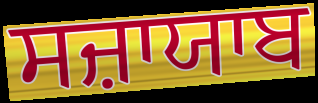
ਸਜ਼ਾਯਾਬ